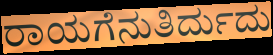
ರಾಯಗೆನುತಿರ್ದುದು